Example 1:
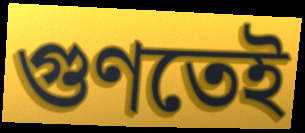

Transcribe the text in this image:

গুণতেই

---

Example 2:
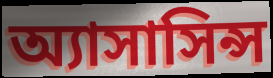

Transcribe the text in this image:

অ্যাসাসিন্স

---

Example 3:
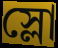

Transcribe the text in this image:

স্লো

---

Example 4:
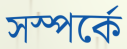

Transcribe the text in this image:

সস্পর্কে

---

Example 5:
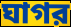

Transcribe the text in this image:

ঘাগর